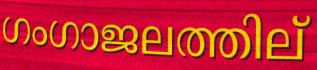
ഗംഗാജലത്തില്